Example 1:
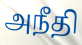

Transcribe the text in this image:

அநீதி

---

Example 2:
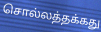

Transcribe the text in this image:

சொல்லத்தக்கது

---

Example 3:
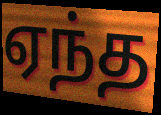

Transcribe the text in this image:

ஏந்த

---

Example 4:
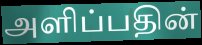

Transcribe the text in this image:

அளிப்பதின்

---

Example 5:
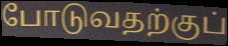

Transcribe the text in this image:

போடுவதற்குப்